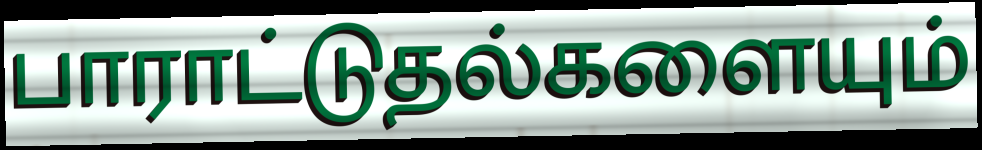
பாராட்டுதல்களையும்